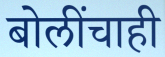
बोलींचाही